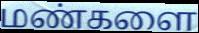
மண்களை